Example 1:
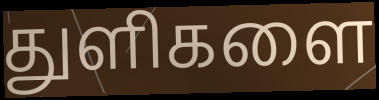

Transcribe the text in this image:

துளிகளை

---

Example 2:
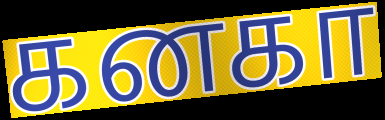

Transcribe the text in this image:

கனகா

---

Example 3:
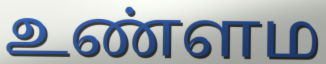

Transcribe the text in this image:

உண்ளம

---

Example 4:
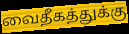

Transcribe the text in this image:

வைதீகத்துக்கு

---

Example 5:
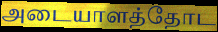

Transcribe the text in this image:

அடையாளத்தோட